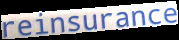
reinsurance